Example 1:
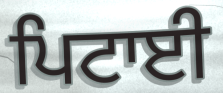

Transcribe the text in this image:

ਪਿਟਾਈ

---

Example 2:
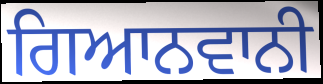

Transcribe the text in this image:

ਗਿਆਨਵਾਨੀ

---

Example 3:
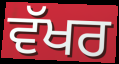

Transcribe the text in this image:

ਵੱਖਰ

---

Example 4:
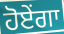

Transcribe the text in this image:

ਹੋਏਂਗਾ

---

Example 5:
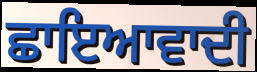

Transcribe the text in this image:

ਛਾਇਆਵਾਦੀ